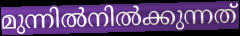
മുന്നിൽനിൽക്കുന്നത്